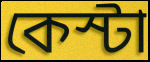
কেস্টা